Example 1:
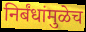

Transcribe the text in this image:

निर्बंधांमुळेच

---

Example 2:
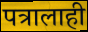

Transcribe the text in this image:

पत्रालाही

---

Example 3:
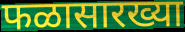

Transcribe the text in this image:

फळासारख्या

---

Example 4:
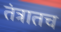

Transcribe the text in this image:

तंत्रातच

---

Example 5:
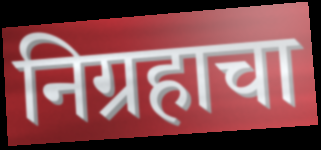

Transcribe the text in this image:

निग्रहाचा